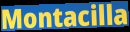
Montacilla